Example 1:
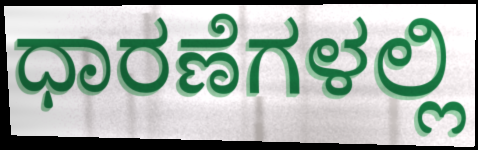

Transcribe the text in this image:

ಧಾರಣೆಗಳಲ್ಲಿ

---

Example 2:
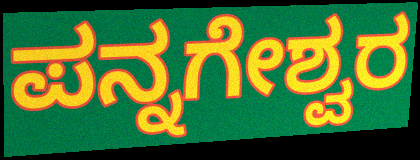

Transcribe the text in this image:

ಪನ್ನಗೇಶ್ವರ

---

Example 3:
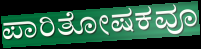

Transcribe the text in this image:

ಪಾರಿತೋಷಕವೂ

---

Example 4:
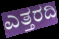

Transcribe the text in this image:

ಎತ್ತರದಿ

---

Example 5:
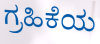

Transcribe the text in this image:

ಗ್ರಹಿಕೆಯ